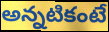
అన్నటికంటే